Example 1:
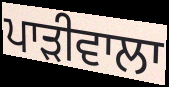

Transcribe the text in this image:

ਪਾੜੀਵਾਲਾ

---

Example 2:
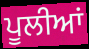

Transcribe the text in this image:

ਪੂਲੀਆਂ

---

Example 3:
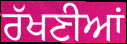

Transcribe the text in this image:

ਰੱਖਣੀਆਂ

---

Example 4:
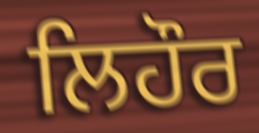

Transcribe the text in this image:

ਲਿਹੌਰ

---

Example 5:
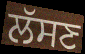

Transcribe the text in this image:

ਲੱਸਣ